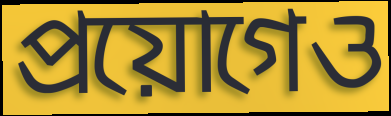
প্ৰয়োগেও